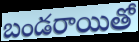
బండరాయితో